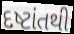
દષ્ટાંતથી